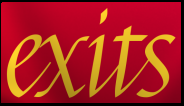
exits